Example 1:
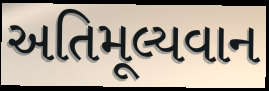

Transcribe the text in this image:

અતિમૂલ્યવાન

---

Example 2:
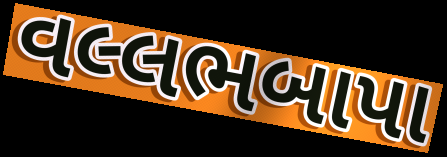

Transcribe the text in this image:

વલ્લભબાપા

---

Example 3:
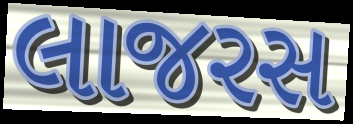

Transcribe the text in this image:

લાજરસ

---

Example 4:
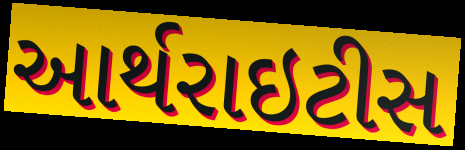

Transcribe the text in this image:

આર્થરાઇટીસ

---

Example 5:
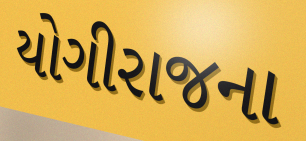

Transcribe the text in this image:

યોગીરાજના